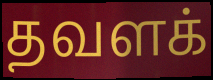
தவளக்